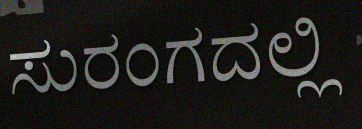
ಸುರಂಗದಲ್ಲಿ